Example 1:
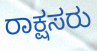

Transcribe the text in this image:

ರಾಕ್ಷಸರು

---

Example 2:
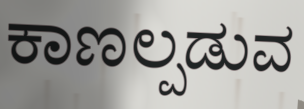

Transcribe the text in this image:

ಕಾಣಲ್ಪಡುವ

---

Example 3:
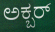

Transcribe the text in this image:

ಅಕ್ಬರ್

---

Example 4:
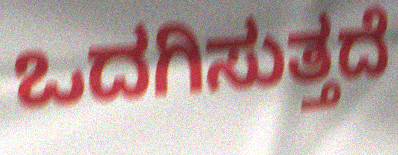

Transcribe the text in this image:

ಒದಗಿಸುತ್ತದೆ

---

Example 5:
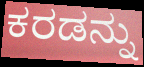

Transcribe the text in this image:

ಕರಡನ್ನು